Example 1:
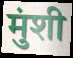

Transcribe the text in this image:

मुंशी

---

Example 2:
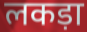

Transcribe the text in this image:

लकड़ा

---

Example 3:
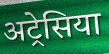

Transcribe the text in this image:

अट्रेसिया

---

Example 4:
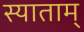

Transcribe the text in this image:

स्याताम्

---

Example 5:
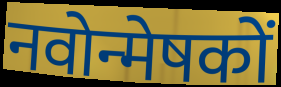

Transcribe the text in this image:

नवोन्‍मेषकों